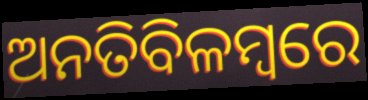
ଅନତିବିଳମ୍ବରେ